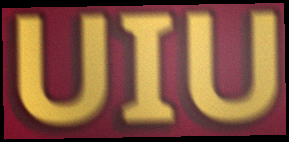
UIU